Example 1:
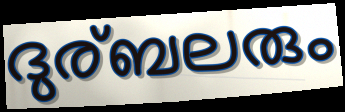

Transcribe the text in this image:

ദുര്ബലരും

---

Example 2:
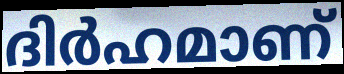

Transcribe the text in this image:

ദിർഹമാണ്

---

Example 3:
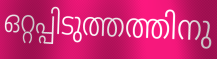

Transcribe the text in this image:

ഒറ്റപ്പിടുത്തത്തിനു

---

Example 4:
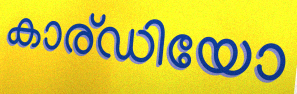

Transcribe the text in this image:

കാര്ഡിയോ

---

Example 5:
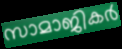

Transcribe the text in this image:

സാമാജികർ